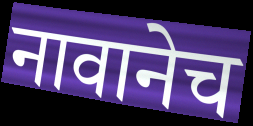
नावानेच